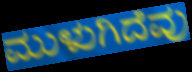
ಮುಳುಗಿದೆವು